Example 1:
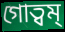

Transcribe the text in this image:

গোত্বম্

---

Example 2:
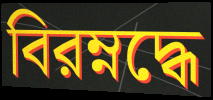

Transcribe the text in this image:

বিরম্নদ্ধে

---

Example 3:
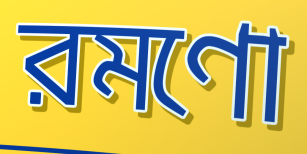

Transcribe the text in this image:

রমণো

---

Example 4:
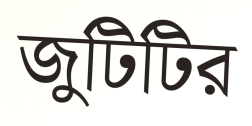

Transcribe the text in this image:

জুটিটির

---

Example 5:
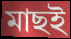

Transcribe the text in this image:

মাছই